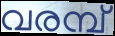
വരമ്പ്